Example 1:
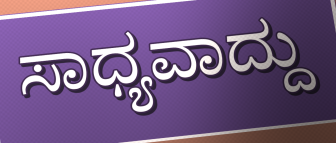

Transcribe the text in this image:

ಸಾಧ್ಯವಾದ್ದು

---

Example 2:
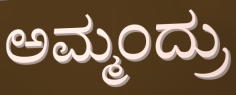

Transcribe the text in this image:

ಅಮ್ಮಂದ್ರು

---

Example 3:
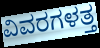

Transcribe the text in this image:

ವಿವರಗಳತ್ತ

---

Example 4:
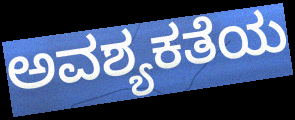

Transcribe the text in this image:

ಅವಶ್ಯಕತೆಯ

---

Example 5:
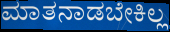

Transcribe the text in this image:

ಮಾತನಾಡಬೇಕಿಲ್ಲ